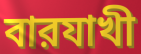
বারযাখী